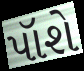
પૉશે